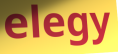
elegy